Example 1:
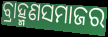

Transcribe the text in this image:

ବ୍ରାହ୍ମଣସମାଜର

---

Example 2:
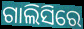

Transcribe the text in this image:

ଗାଲିସିରେ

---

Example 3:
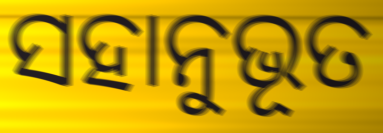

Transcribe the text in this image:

ସହାନୁଭୂତ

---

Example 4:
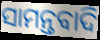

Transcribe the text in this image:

ସାମନ୍ତବାଦି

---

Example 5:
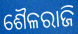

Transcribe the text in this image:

ଶୈଳରାଜି